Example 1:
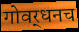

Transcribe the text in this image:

गोवर्धनच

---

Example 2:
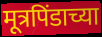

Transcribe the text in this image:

मूत्रपिंडाच्या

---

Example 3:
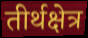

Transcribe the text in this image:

तीर्थक्षेत्र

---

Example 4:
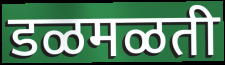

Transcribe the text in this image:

डळमळती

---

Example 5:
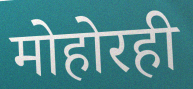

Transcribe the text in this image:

मोहोरही